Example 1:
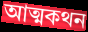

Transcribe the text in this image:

আত্মকথন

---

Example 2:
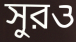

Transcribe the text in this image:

সুরও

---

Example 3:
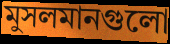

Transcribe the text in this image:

মুসলমানগুলো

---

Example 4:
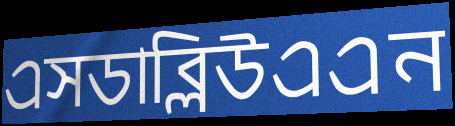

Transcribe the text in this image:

এসডাব্লিউএএন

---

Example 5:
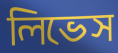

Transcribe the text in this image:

লিভেস